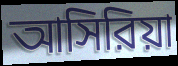
আসিরিয়া